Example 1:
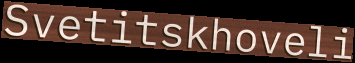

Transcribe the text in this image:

Svetitskhoveli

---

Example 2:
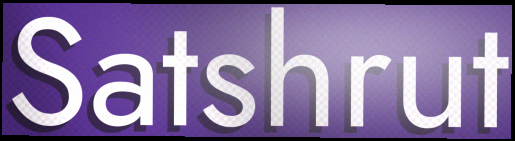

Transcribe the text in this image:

Satshrut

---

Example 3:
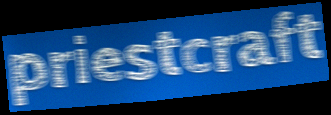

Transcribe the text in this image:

priestcraft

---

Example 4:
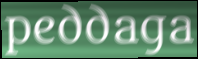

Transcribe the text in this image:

peddaga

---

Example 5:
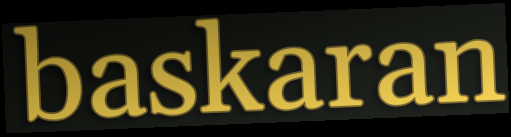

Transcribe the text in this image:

baskaran